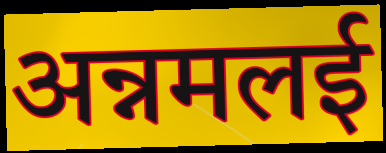
अन्नमलई